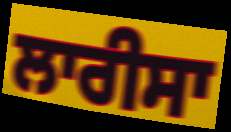
ਲਾਰੀਸਾ